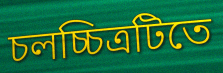
চলচ্চিত্রটিতে